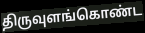
திருவுளங்கொண்ட